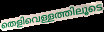
തെളിവെള്ളത്തിലൂടെ